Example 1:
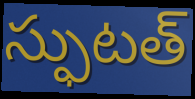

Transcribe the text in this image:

స్ఫుటత్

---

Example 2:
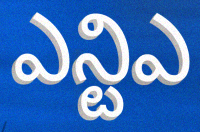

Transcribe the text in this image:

ఎన్టిఎ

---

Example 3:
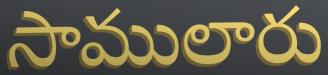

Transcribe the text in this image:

సాములారు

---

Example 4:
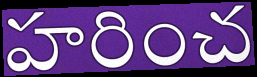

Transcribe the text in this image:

హరించ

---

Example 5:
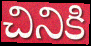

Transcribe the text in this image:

చినికి